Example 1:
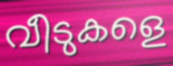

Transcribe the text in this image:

വീടുകളെ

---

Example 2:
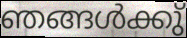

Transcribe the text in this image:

ഞങ്ങൾക്കു്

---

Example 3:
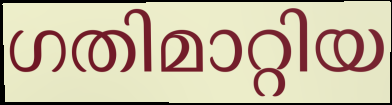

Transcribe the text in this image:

ഗതിമാറ്റിയ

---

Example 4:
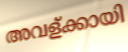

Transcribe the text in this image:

അവള്ക്കായി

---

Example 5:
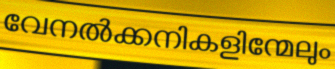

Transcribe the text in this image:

വേനൽക്കനികളിന്മേലും